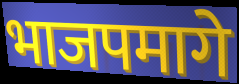
भाजपमागे